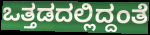
ಒತ್ತಡದಲ್ಲಿದ್ದಂತೆ